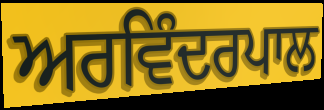
ਅਰਵਿੰਦਰਪਾਲ